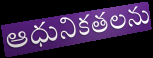
ఆధునికతలను